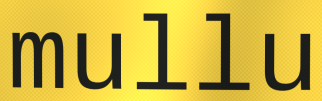
mullu